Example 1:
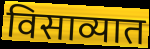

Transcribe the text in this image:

विसाव्यात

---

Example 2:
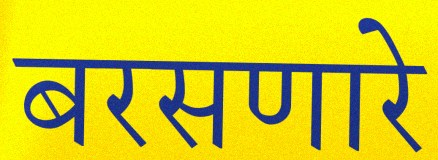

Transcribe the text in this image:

बरसणारे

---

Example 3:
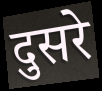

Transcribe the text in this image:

दुसरे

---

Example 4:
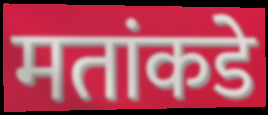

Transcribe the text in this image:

मतांकडे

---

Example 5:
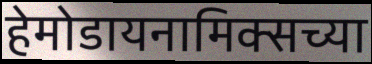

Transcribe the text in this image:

हेमोडायनामिक्सच्या